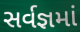
સર્વજ્ઞમાં